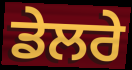
ਡੇਲਰੇ